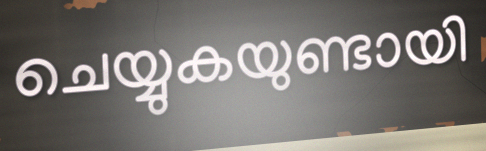
ചെയ്യുകയുണ്ടായി